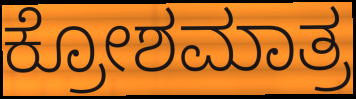
ಕ್ರೋಶಮಾತ್ರ